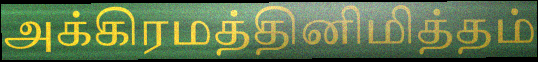
அக்கிரமத்தினிமித்தம்